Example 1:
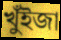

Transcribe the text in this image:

খুঁইজা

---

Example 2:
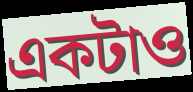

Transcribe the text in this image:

একটাও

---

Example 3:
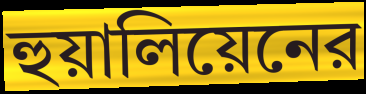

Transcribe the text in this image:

হুয়ালিয়েনের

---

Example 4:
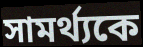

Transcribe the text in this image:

সামর্থ্যকে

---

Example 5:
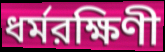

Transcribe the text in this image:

ধর্মরক্ষিণী